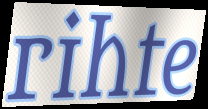
rihte